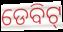
ଡେବିଟ୍